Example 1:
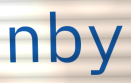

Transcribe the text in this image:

nby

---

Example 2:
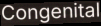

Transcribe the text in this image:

Congenital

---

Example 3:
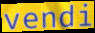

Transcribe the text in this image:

vendi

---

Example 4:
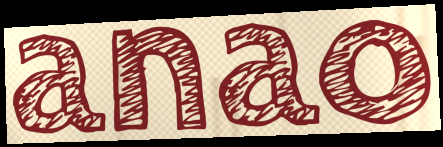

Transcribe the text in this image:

anao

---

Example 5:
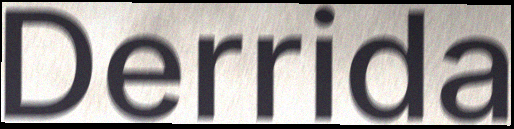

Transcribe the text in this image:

Derrida